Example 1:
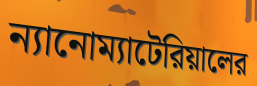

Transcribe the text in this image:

ন্যানোম্যাটেরিয়ালের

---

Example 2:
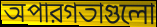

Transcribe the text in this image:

অপারগতাগুলো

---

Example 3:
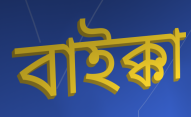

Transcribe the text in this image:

বাইক্কা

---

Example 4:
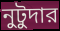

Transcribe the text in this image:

নুটুদার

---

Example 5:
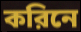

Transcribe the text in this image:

করিনে